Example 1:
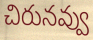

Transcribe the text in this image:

చిరునవ్వు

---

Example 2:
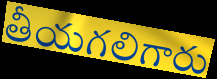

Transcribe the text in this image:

తీయగలిగారు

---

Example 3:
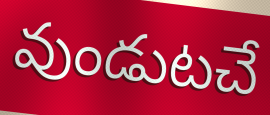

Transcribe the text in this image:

వుండుటచే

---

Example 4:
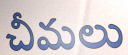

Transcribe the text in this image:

చీమలు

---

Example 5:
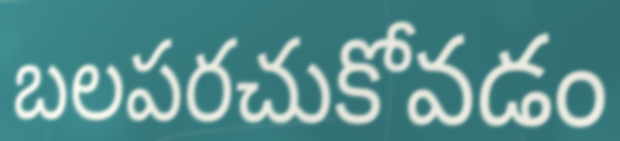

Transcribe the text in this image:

బలపరచుకోవడం